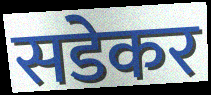
सडेकर